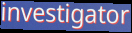
investigator